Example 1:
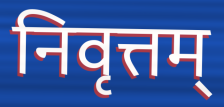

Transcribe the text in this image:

निवृत्तम्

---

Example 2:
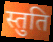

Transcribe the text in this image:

स्तुति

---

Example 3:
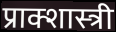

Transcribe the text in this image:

प्राक्शास्त्री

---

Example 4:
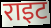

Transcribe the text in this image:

राइट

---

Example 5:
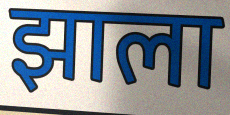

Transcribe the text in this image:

झाला